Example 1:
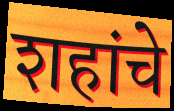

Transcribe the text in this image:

शहांचे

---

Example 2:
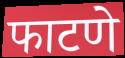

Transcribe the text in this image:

फाटणे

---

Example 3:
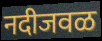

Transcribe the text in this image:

नदीजवळ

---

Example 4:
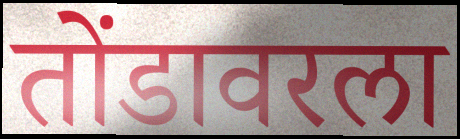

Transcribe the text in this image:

तोंडावरला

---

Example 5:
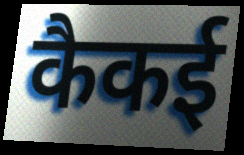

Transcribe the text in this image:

कैकई